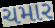
ચમાર